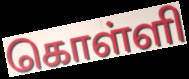
கொள்ளி